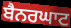
ਬੈਨਰਘਾਟ